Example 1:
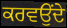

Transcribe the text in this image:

ਕਰਵਉਂਦੇ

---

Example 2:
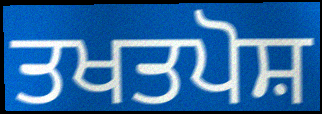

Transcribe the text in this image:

ਤਖਤਪੋਸ਼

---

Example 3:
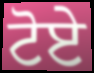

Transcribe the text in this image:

ਟੋਏ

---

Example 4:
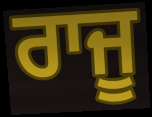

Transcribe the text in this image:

ਰਾਜੂ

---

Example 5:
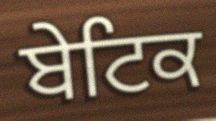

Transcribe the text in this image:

ਬੇਟਿਕ